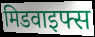
मिडवाइफ्स